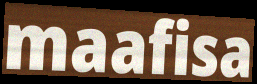
maafisa